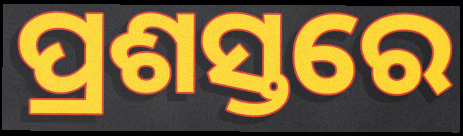
ପ୍ରଶସ୍ତରେ